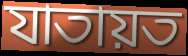
যাতায়ত